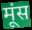
मूंस